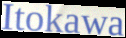
Itokawa